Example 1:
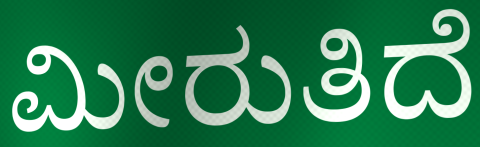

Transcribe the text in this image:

ಮೀರುತಿದೆ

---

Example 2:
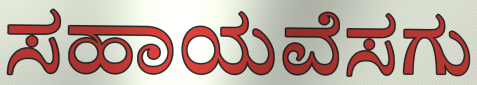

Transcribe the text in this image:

ಸಹಾಯವೆಸಗು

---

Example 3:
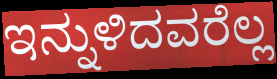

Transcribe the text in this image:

ಇನ್ನುಳಿದವರೆಲ್ಲ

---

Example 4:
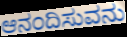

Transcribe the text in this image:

ಆನಂದಿಸುವನು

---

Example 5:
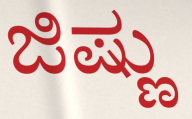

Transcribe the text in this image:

ಜಿಷ್ಣು